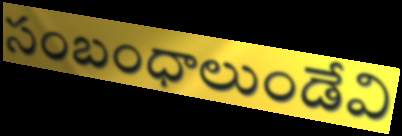
సంబంధాలుండేవి